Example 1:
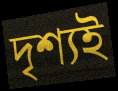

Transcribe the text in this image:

দৃশ্যই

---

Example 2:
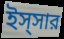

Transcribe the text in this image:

ইস্সার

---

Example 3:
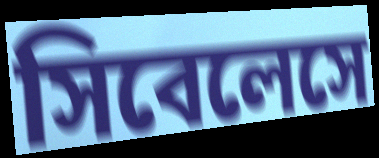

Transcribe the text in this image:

সিবেলেসে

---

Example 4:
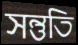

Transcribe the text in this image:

সন্তুতি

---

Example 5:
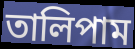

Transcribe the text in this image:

তালিপাম